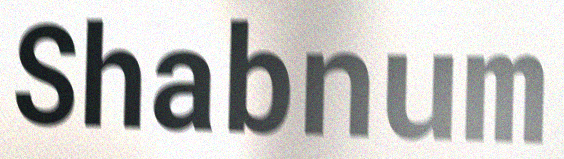
Shabnum